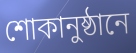
শোকানুষ্ঠানে